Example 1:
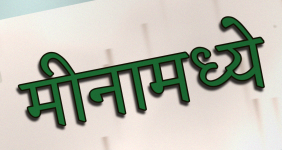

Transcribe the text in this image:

मीनामध्ये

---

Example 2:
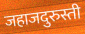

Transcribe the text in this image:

जहाजदुरुस्ती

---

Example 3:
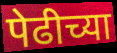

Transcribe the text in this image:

पेढीच्या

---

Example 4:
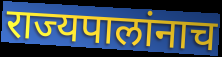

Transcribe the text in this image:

राज्यपालांनाच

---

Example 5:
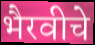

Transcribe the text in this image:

भैरवीचे